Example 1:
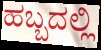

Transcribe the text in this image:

ಹಬ್ಬದಲ್ಲಿ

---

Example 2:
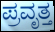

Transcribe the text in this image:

ಪ್ರವೃತ್ತ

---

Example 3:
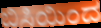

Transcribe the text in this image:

ಬಿಸಿಯಿಂದ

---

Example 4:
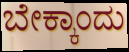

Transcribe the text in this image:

ಬೇಕ್ಕಾಂದು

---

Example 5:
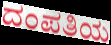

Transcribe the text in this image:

ದಂಪತಿಯ